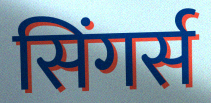
सिंगर्स